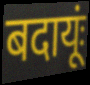
बदायूंः